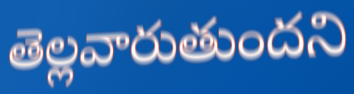
తెల్లవారుతుందని